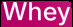
Whey